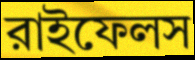
রাইফেলস